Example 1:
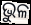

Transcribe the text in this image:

ଭୁଳ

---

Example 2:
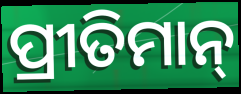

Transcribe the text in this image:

ପ୍ରୀତିମାନ୍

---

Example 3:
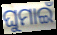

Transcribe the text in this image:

ଘୁମାଇଁ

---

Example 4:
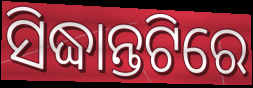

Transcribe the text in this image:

ସିଦ୍ଧାନ୍ତଟିରେ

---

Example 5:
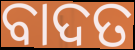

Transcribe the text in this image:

ବାଦତ